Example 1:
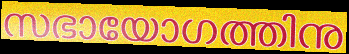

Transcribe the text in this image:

സഭായോഗത്തിനു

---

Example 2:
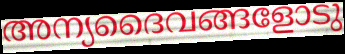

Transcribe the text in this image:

അന്യദൈവങ്ങളോടു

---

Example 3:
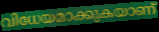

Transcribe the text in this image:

വിധേയമാക്കുകയാണ്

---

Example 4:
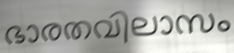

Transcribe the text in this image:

ഭാരതവിലാസം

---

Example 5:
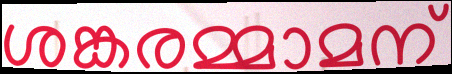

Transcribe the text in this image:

ശങ്കരമ്മാമന്